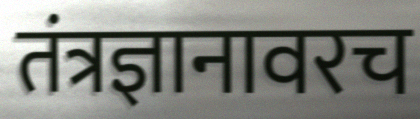
तंत्रज्ञानावरच